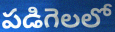
పడిగెలలో